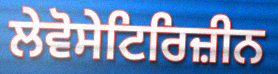
ਲੇਵੋਸੇਟਿਰਿਜ਼ੀਨ